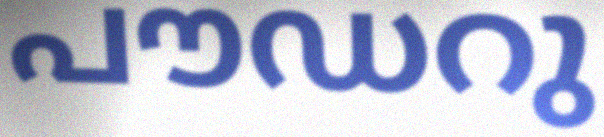
പൗഡറു